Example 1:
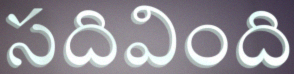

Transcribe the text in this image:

సదివింది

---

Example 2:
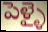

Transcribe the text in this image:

పెళ్ళై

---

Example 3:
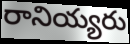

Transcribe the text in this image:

రానియ్యరు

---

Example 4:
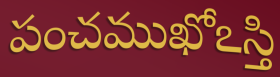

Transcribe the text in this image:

పంచముఖోఽస్తి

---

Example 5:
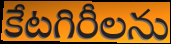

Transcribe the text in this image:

కేటగిరీలను